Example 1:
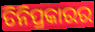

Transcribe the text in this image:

ତିନିପ୍ରକାରର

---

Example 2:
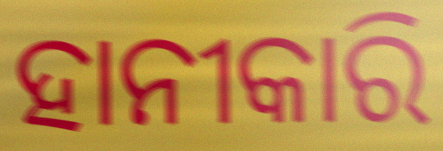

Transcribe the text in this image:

ହାନୀକାରି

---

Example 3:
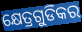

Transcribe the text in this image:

କ୍ଷେତ୍ରଗୁଡିକର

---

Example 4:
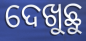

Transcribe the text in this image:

ଦେଖୁଛୁ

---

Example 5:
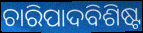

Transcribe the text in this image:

ଚାରିପାଦବିଶିଷ୍ଟ